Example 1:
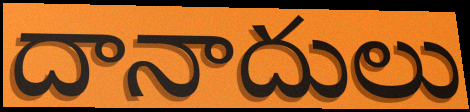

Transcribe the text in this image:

దానాదులు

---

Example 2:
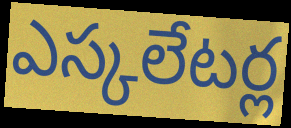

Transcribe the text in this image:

ఎస్కలేటర్ల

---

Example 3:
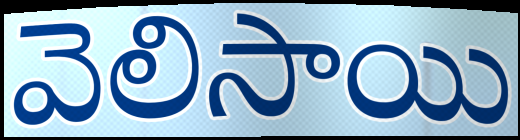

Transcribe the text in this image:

వెలిసాయి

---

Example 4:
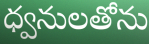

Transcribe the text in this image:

ధ్వనులతోను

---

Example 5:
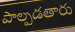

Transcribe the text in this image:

పాల్పడతారు